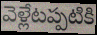
వెళ్లేటప్పటికి